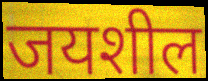
जयशील